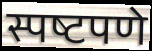
स्‍पष्‍टपणे